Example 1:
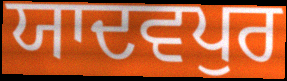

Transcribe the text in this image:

ਯਾਦਵਪੁਰ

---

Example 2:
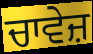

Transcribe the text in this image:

ਚਾਵੇਜ਼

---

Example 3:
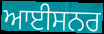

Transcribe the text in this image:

ਆਈਸਨਰ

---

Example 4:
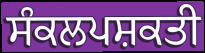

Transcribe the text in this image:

ਸੰਕਲਪਸ਼ਕਤੀ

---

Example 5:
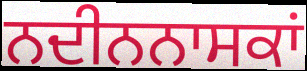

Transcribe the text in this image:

ਨਦੀਨਨਾਸਕਾਂ